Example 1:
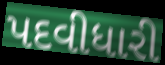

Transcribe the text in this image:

પદવીધારી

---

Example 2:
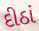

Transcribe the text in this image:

દીઠાં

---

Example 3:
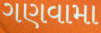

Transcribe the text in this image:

ગણવામા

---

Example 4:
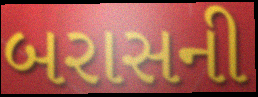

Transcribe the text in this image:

બરાસની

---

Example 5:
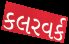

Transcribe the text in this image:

કલરવર્ક